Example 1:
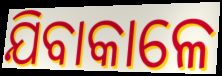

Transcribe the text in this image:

ଯିବାକାଳେ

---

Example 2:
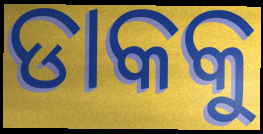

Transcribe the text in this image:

ଡାକକୁ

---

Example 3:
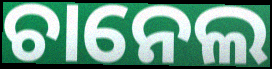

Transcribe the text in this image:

ଚାନେଲ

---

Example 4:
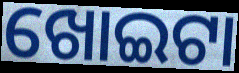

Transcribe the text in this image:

ଖୋଇଟା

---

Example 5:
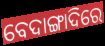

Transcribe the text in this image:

ବେଦାଙ୍ଗାଦିରେ